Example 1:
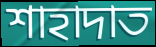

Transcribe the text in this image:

শাহাদাত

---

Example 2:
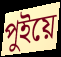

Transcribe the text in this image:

পুইয়ে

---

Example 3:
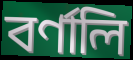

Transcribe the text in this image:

বর্ণালি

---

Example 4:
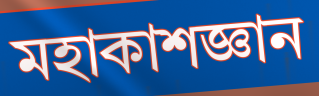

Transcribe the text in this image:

মহাকাশজ্ঞান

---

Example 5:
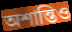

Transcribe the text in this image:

অশান্তিও